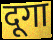
दूगा